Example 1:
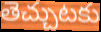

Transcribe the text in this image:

తెచ్చుటకు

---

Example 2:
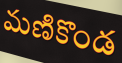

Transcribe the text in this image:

మణికొండ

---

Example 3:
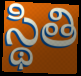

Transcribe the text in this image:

స్థితి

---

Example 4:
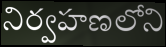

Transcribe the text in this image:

నిర్వహణలోని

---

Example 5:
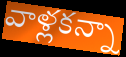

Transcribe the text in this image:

వాళ్లకన్నా